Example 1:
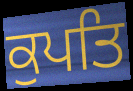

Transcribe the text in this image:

ਕੁਪਤਿ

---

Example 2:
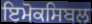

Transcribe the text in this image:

ਇਮੋਕਸਿਬਲ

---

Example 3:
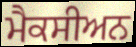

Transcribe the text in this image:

ਮੈਕਸੀਅਨ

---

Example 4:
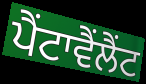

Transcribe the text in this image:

ਪੈਂਟਾਵੈਂਲੈਂਟ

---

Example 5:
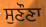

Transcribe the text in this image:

ਸੁਣੌਣਾ